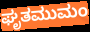
ಘೃತಮುಮಂ